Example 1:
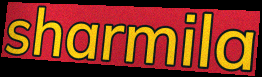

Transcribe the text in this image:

sharmila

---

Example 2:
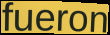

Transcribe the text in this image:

fueron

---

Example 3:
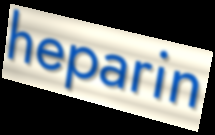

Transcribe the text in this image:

heparin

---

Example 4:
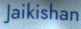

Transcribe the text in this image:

Jaikishan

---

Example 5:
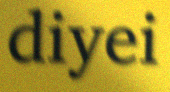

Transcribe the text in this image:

diyei